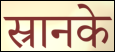
स्रानके